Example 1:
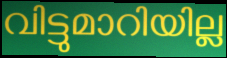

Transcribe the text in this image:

വിട്ടുമാറിയില്ല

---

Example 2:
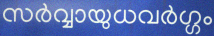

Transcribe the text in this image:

സർവ്വായുധവർഗ്ഗം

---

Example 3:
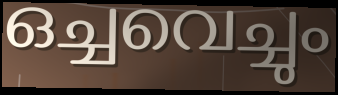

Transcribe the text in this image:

ഒച്ചവെച്ചും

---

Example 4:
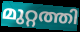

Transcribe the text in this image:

മുറ്റത്തി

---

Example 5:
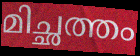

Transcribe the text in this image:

മിച്ഛത്തം